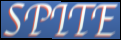
SPITE